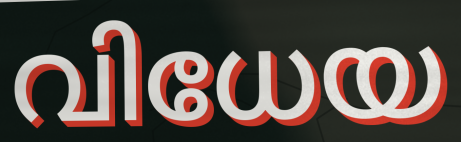
വിധേയ